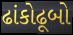
ઢાંકોઢૂબો